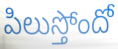
పిలుస్తోందో